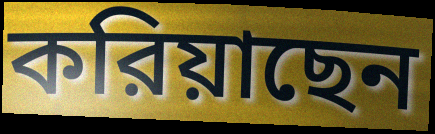
করিয়াছেন